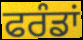
ਫਰੰਡਾਂ